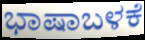
ಭಾಷಾಬಳಕೆ